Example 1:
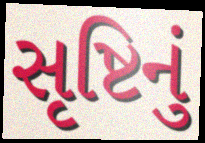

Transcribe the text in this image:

સૃષ્ટિનું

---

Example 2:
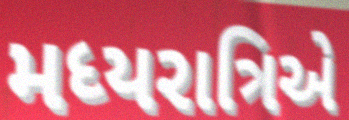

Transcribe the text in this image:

મધ્યરાત્રિએ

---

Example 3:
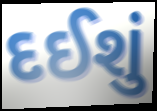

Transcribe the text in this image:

દઈશું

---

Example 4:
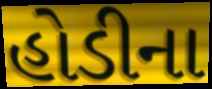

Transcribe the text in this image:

હોડીના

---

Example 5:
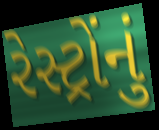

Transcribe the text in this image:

રેસ્ટ્રોંનું